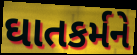
ઘાતકર્મને